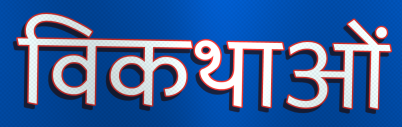
विकथाओं